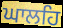
ਘਾਲਹਿ